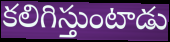
కలిగిస్తుంటాడు